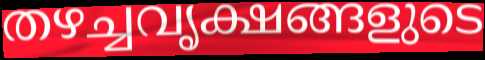
തഴച്ചവൃക്ഷങ്ങളുടെ